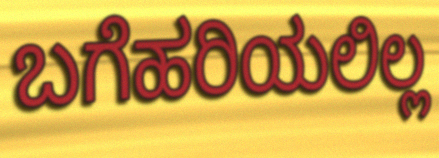
ಬಗೆಹರಿಯಲಿಲ್ಲ